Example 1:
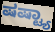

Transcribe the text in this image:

ಷಷ್ಟ್ಯಾ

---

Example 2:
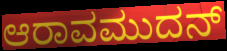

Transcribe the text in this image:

ಆರಾವಮುದನ್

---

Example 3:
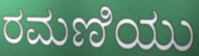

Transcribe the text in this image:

ರಮಣಿಯು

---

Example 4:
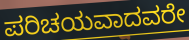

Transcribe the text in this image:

ಪರಿಚಯವಾದವರೇ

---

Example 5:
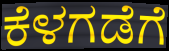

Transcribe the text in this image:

ಕೆಳಗಡೆಗೆ